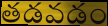
తడవడం